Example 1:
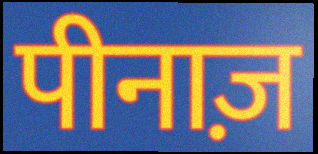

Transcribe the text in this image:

पीनाज़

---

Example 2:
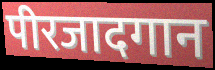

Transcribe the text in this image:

पीरजादगान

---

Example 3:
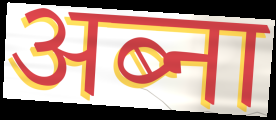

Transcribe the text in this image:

अब्ना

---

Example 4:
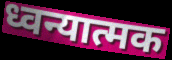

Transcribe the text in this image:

ध्वन्यात्मक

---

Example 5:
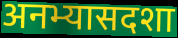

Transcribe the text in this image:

अनभ्यासदशा